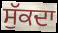
ਸੁੱਕਦਾ